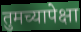
तुमच्यापेक्षा